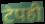
टेपही